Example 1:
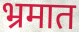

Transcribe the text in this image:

भ्रमात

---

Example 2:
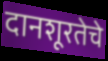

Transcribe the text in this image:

दानशूरतेचे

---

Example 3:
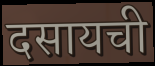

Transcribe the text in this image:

दसायची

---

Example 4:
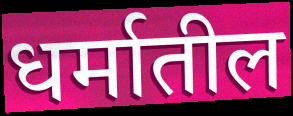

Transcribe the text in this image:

धर्मातील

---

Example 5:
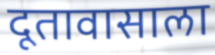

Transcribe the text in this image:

दूतावासाला